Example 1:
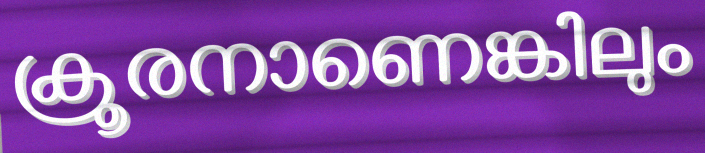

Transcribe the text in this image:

ക്രൂരനാണെങ്കിലും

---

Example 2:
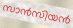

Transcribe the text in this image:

സാൻസിയൻ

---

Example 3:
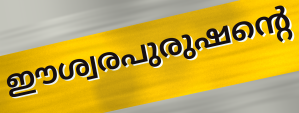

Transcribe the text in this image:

ഈശ്വരപുരുഷന്റെ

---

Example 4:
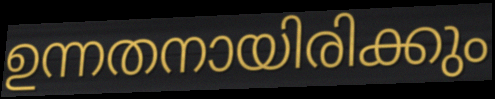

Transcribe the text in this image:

ഉന്നതനായിരിക്കും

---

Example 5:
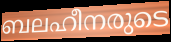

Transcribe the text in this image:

ബലഹീനരുടെ